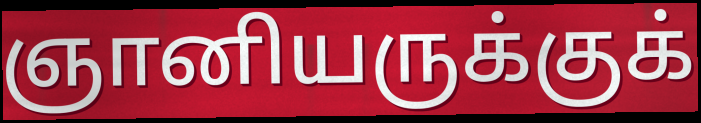
ஞானியருக்குக்